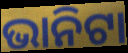
ଭାନିଟା